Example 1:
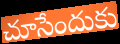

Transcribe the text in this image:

చూసేందుకు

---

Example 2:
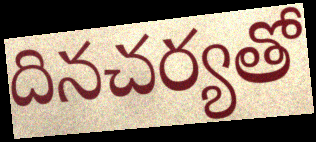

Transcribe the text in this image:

దినచర్యతో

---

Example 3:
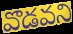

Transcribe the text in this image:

వొడవని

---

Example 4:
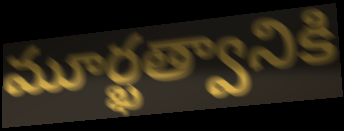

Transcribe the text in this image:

మూర్ఖత్వానికి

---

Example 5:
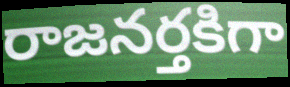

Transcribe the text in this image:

రాజనర్తకిగా